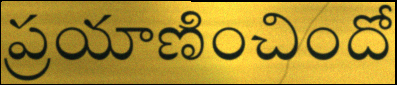
ప్రయాణించిందో